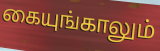
கையுங்காலும்